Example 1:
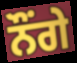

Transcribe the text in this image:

ਨੌਂਗੇ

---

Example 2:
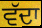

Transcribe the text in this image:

ਵੱਦਾ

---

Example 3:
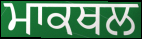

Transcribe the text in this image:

ਮਾਕਥਲ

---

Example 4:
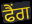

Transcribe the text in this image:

ਫੈਂਗ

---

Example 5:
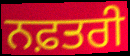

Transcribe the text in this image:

ਨਫ਼ਤਰੀ